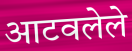
आटवलेले